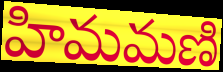
హిమమణి